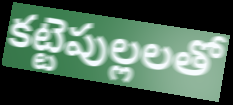
కట్టెపుల్లలతో